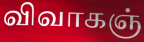
விவாகஞ்